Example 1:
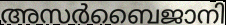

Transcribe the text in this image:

അസർബൈജാനി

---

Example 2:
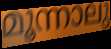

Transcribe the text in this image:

മൂന്നാലു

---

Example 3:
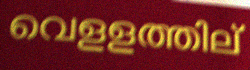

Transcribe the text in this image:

വെളളത്തില്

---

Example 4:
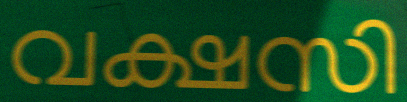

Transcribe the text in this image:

വക്ഷസി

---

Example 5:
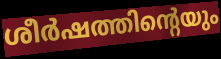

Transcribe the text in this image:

ശീർഷത്തിന്റെയും